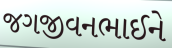
જગજીવનભાઈને